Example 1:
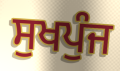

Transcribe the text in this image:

ਸੁਖਪੁੰਜ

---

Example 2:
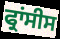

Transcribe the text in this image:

ਫ੍ਰਾਂਸੀਸ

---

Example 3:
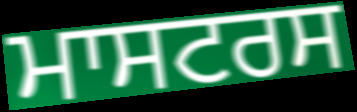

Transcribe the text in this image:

ਮਾਸਟਰਸ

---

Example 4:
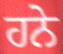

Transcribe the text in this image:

ਹਨੇ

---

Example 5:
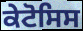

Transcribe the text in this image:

ਕੇਟੋਸਿਸ